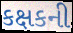
કક્ષકની